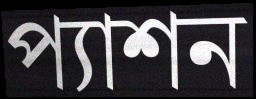
প্যাশন